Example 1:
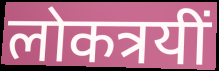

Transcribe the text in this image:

लोकत्रयीं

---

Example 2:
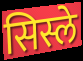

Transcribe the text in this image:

सिस्ले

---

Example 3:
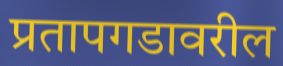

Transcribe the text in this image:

प्रतापगडावरील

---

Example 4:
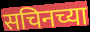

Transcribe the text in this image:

सचिनच्या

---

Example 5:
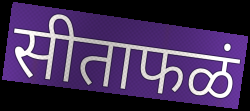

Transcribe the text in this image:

सीताफळं